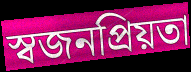
স্বজনপ্রিয়তা